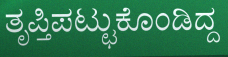
ತೃಪ್ತಿಪಟ್ಟುಕೊಂಡಿದ್ದ